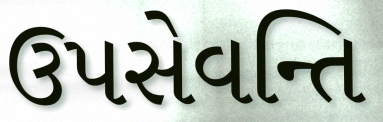
ઉપસેવન્તિ